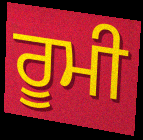
ਰੂਮੀ